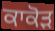
ਕਾਕੋੜ